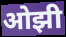
ओझी